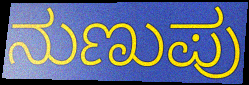
ನುಣುಪು